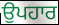
ਉਪਹਾਰ